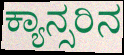
ಕ್ಯಾನ್ಸರಿನ